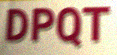
DPQT